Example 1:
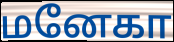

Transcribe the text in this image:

மனேகா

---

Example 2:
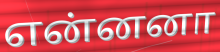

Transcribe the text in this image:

என்னனா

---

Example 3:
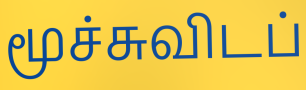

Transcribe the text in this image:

மூச்சுவிடப்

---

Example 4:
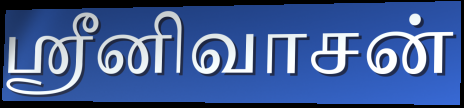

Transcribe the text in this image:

ஸ்ரீனிவாசன்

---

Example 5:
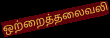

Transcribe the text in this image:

ஒற்றைத்தலைவலி